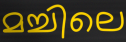
മച്ചിലെ